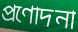
প্রণোদনা